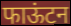
फाऊंटन